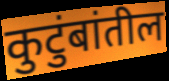
कुटुंबांतील